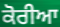
ਕੋਰੀਆ